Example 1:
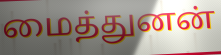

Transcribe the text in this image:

மைத்துனன்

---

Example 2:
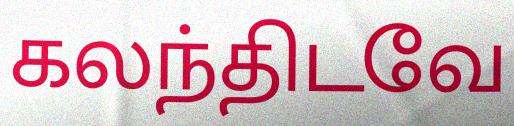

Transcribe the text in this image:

கலந்திடவே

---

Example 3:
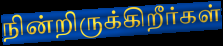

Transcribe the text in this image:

நின்றிருக்கிறீர்கள்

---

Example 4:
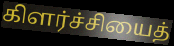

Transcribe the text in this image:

கிளர்ச்சியைத்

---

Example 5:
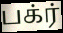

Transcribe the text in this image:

பக்ர்